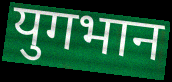
युगभान